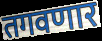
तगवणार